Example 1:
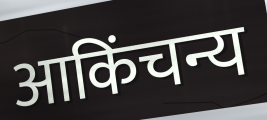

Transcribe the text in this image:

आकिंचन्य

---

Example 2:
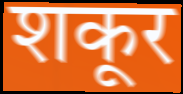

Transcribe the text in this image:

शकूर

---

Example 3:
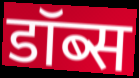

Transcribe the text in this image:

डॉब्स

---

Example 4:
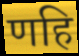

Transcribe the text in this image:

णहि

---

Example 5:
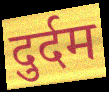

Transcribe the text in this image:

दुर्दम